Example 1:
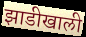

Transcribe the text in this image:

झाडीखाली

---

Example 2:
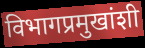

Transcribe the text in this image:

विभागप्रमुखांशी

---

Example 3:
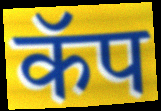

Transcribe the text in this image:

कॅप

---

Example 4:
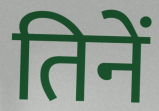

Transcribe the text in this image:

तिनें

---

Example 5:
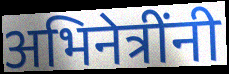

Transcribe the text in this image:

अभिनेत्रींनी